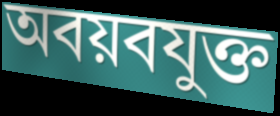
অবয়বযুক্ত